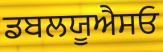
ਡਬਲਯੂਐਸਓ